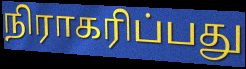
நிராகரிப்பது